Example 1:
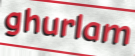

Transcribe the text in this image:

ghurlam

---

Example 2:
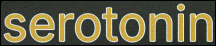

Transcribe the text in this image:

serotonin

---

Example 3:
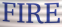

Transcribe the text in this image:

FIRE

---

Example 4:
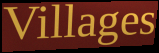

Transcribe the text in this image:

Villages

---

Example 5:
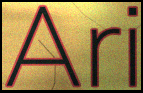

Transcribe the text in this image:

Ari